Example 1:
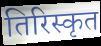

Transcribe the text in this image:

तिरिस्कृत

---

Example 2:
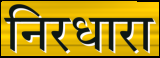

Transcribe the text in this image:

निरधारा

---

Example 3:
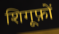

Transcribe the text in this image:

शिगूफ़ों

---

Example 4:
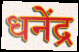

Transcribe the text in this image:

धनेंद्र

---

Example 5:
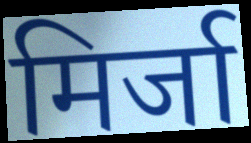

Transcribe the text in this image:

मिर्जा